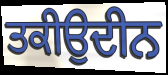
ਤਕੀਉਦੀਨ